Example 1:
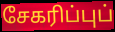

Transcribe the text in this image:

சேகரிப்புப்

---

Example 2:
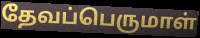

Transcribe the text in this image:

தேவப்பெருமாள்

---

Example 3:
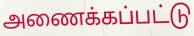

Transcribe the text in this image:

அணைக்கப்பட்டு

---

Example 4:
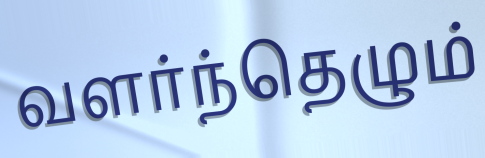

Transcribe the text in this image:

வளர்ந்தெழும்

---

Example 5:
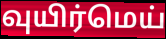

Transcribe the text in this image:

வுயிர்மெய்